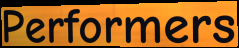
Performers